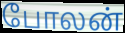
போலன்